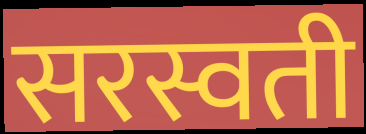
सरस्वती